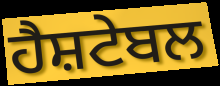
ਹੈਸ਼ਟੇਬਲ